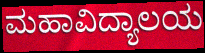
ಮಹಾವಿದ್ಯಾಲಯ